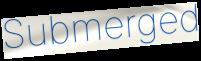
Submerged